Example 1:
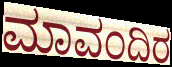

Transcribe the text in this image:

ಮಾವಂದಿರ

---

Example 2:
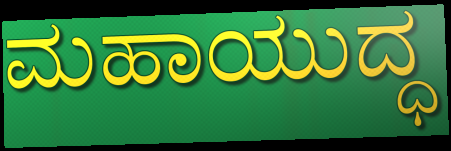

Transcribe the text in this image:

ಮಹಾಯುದ್ಧ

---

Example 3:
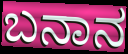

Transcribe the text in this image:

ಬನಾನ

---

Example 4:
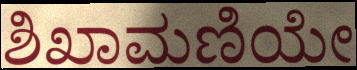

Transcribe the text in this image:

ಶಿಖಾಮಣಿಯೇ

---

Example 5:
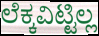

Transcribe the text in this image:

ಲೆಕ್ಕವಿಟ್ಟಿಲ್ಲ